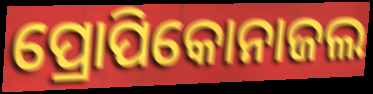
ପ୍ରୋପିକୋନାଜଲ